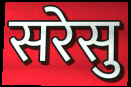
सरेसु